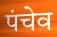
पंचेव